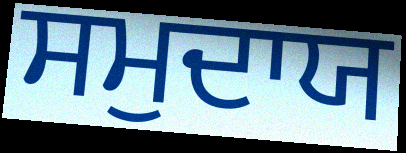
ਸਮੁਦਾਯ